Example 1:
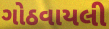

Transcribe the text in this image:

ગોઠવાયલી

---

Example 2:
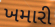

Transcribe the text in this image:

ખમારી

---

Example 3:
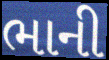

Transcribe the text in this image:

ભાની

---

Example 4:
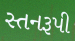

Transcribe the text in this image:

સ્તનરૂપી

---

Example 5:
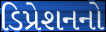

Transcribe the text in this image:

ડિપ્રેશનનો